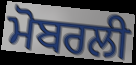
ਮੋਬਰਲੀ